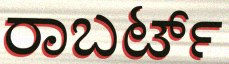
ರಾಬರ್ಟ್